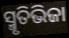
ସ୍ମୃତିଭିଜା